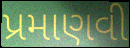
પ્રમાણવી